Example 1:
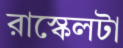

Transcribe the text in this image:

রাস্কেলটা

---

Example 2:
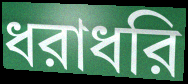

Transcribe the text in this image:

ধরাধরি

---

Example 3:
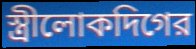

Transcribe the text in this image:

স্ত্রীলোকদিগের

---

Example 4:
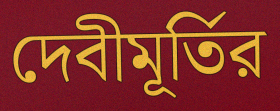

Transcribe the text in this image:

দেবীমূর্তির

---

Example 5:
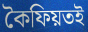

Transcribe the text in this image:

কৈফিয়তই